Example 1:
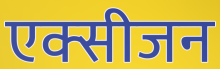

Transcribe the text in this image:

एक्सीजन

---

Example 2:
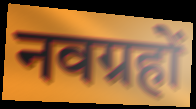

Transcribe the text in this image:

नवग्रहों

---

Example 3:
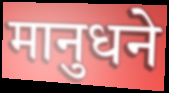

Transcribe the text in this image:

मानुधने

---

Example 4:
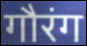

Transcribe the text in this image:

गौरंग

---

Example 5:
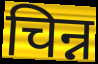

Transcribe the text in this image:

चिन्न